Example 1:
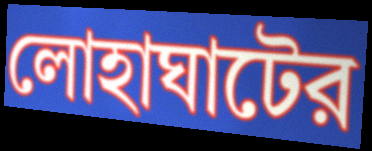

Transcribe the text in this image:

লোহাঘাটের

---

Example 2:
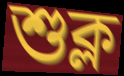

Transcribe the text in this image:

শুক্ল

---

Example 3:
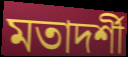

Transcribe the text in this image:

মতাদর্শী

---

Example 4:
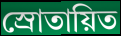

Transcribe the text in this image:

স্রোতায়িত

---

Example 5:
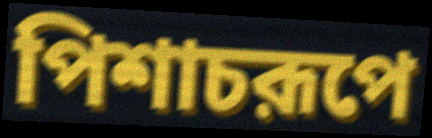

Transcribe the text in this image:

পিশাচরূপে